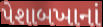
પેશાબખાનાં